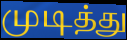
முடித்து